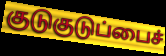
குடுகுடுப்பைச்